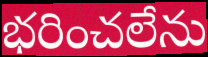
భరించలేను